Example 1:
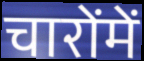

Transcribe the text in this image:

चारोंमें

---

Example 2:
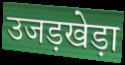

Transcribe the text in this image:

उजड़खेड़ा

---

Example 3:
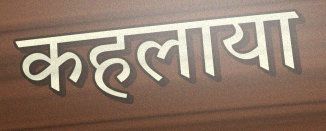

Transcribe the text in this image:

कहलाया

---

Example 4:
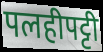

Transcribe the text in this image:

पलहीपट्टी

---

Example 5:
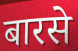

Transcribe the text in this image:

बारसे